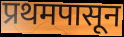
प्रथमपासून